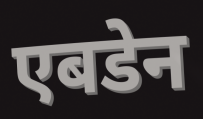
एबडेन